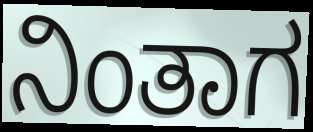
ನಿಂತಾಗ